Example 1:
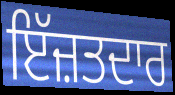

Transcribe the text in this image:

ਇੱਜ਼ਤਦਾਰ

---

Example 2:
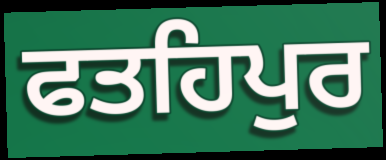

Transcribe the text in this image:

ਫਤਹਿਪੁਰ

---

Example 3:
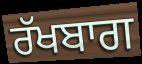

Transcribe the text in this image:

ਰੱਖਬਾਗ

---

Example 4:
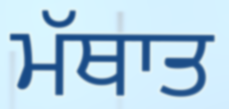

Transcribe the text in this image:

ਮੱਥਾਤ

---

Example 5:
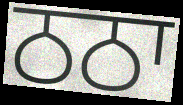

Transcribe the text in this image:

ਠਠਾ